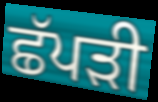
ਛੱਪੜੀ